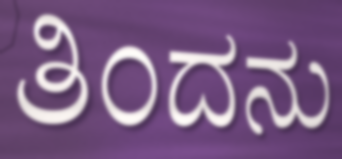
ತಿಂದನು